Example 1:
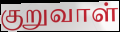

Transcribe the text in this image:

குறுவாள்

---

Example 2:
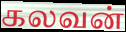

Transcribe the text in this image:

கலவன்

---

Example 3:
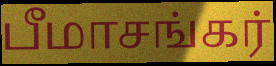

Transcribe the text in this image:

பீமாசங்கர்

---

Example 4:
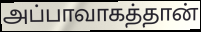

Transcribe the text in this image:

அப்பாவாகத்தான்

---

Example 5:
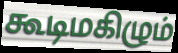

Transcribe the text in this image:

கூடிமகிழும்